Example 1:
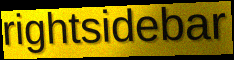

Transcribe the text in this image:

rightsidebar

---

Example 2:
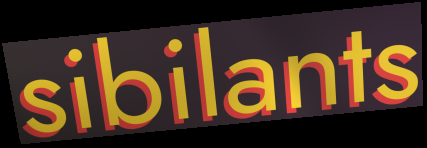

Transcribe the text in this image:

sibilants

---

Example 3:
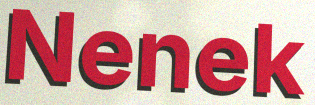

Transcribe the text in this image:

Nenek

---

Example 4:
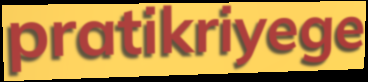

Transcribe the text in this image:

pratikriyege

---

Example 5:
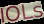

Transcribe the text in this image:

IOLs